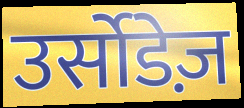
उर्सोडेज़